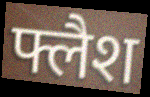
फ्लैश